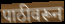
पाठीवरून